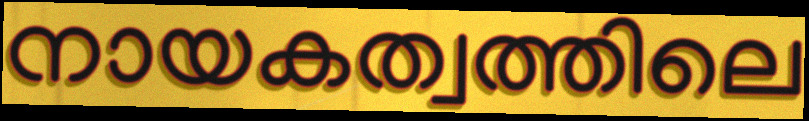
നായകത്വത്തിലെ